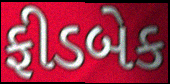
ફીડબેક